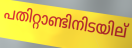
പതിറ്റാണ്ടിനിടയില്